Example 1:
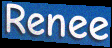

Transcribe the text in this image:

Renee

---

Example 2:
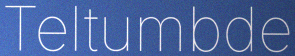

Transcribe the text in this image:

Teltumbde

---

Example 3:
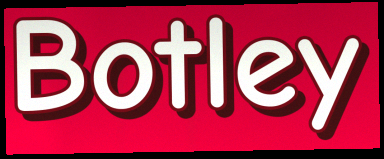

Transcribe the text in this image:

Botley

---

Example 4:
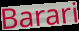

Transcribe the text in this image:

Barari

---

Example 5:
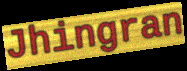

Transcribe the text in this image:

Jhingran